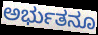
ಅರ್ಭುತನೂ